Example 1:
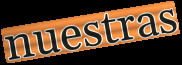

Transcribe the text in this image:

nuestras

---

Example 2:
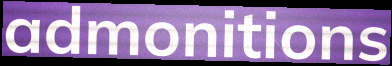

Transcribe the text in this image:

admonitions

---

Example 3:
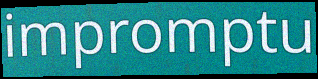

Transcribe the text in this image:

impromptu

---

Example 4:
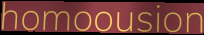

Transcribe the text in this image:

homoousion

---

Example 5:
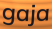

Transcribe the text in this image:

gaja